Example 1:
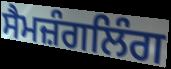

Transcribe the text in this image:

ਸੈਮਜ਼ੰਗਲਿੰਗ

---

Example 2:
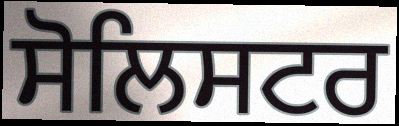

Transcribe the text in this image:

ਸੋਲਿਸਟਰ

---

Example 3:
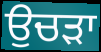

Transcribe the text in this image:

ਉਚੜਾ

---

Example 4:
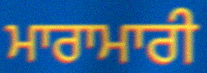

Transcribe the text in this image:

ਮਾਰਾਮਾਰੀ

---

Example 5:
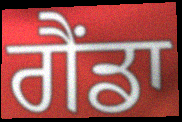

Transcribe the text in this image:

ਗੈਂਡਾ